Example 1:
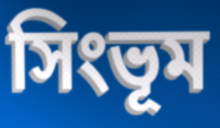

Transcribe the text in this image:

সিংভূম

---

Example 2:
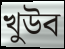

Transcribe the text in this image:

খুউব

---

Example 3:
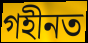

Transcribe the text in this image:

গহীনত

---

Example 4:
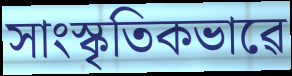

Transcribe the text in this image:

সাংস্কৃতিকভাৱে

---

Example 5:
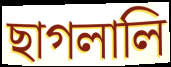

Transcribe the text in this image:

ছাগলালি